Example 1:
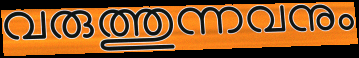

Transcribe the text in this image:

വരുത്തുന്നവനും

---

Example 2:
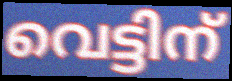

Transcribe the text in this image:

വെട്ടിന്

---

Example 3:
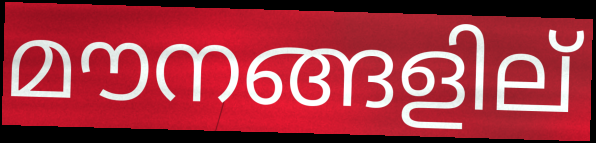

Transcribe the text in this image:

മൗനങ്ങളില്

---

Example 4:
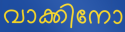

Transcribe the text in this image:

വാക്കിനോ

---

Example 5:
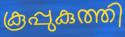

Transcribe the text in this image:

കൂപ്പുകുത്തി